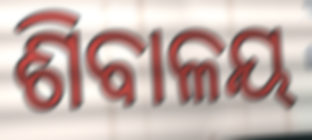
ଶିବାଳୟ